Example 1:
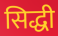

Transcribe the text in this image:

सिद्धी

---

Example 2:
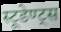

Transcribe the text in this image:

स्टूडेण्ट्स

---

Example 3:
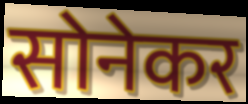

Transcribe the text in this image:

सोनेकर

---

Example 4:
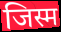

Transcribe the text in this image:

जिस्म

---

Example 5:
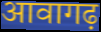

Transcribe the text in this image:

आवागढ़